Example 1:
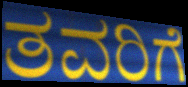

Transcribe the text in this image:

ತವರಿಗೆ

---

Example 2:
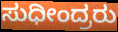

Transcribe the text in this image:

ಸುಧೀಂದ್ರರು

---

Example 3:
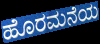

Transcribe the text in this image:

ಹೊರಮನೆಯ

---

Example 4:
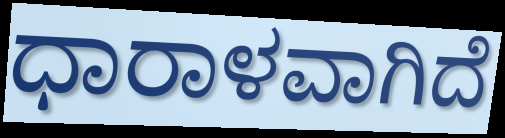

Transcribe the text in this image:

ಧಾರಾಳವಾಗಿದೆ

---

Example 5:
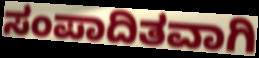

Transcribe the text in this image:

ಸಂಪಾದಿತವಾಗಿ